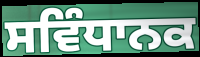
ਸਵਿੰਧਾਨਕ